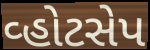
વ્હોટસેપ